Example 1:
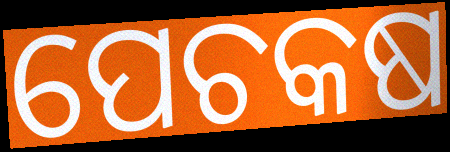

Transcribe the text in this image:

ପେଚକଷ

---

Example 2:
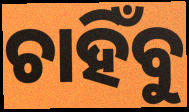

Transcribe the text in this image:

ଚାହିଁବୁ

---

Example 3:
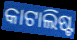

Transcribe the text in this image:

କାଟାଲିଷ୍ଟ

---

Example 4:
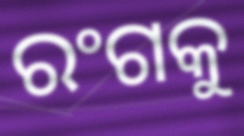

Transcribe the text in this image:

ରଂଗକୁ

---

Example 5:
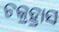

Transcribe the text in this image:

ଚକ୍ରହ୍ରାସ